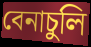
বেনাচুলি